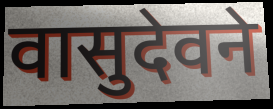
वासुदेवने